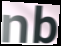
nb